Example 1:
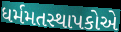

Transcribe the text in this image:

ધર્મમતસ્થાપકોએ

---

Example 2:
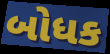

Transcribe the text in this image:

બોધક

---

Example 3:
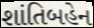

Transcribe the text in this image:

શાંતિબહેન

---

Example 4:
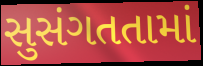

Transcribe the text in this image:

સુસંગતતામાં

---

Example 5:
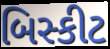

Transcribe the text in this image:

બિસ્કીટ